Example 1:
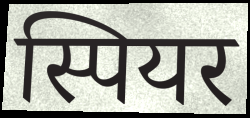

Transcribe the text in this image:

स्पियर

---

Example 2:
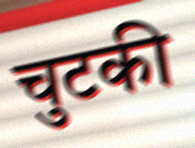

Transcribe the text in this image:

चुटकी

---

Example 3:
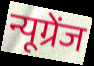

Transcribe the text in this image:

न्यूग्रेंज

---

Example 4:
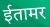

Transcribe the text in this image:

ईतामर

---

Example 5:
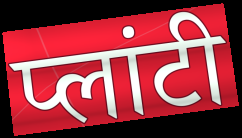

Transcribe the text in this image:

प्लांटी